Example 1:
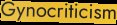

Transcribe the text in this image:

Gynocriticism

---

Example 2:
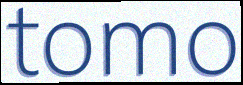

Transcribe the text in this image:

tomo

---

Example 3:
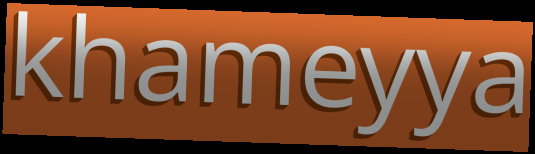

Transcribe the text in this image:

khameyya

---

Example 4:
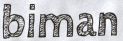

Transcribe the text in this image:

biman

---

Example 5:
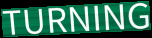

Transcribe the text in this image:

TURNING